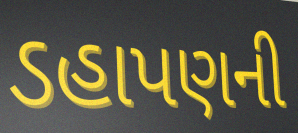
ડહાપણની